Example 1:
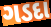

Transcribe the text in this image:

ગડદા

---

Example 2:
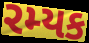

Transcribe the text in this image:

રમ્યક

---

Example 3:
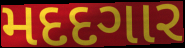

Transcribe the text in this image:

મદદગાર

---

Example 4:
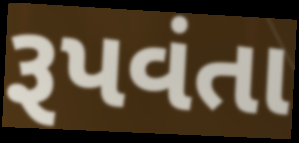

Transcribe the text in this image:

રૂપવંતા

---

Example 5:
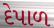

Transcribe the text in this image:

દેપાળ